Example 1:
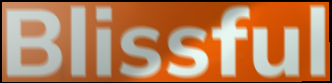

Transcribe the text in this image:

Blissful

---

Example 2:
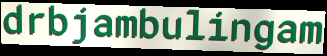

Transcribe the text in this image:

drbjambulingam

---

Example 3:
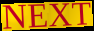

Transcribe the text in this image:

NEXT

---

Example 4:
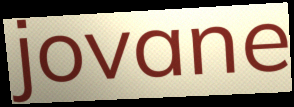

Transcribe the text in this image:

jovane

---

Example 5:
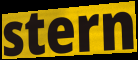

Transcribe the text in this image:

stern